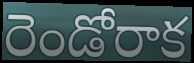
రెండోరాక